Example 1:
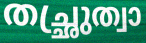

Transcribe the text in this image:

തച്ഛ്രുത്വാ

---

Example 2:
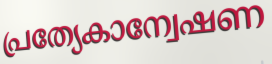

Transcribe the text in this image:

പ്രത്യേകാന്വേഷണ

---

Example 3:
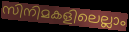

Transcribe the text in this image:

സിനിമകളിലെല്ലാം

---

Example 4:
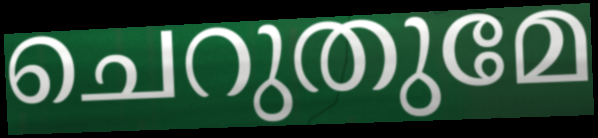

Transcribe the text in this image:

ചെറുതുമേ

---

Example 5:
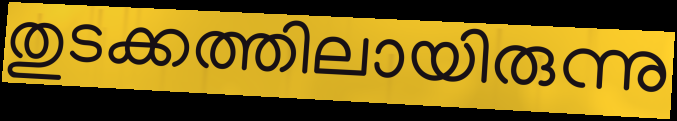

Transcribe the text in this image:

തുടക്കത്തിലായിരുന്നു